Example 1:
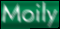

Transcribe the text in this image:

Moily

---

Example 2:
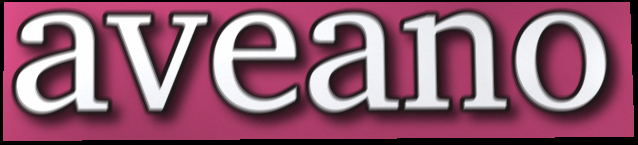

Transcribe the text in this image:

aveano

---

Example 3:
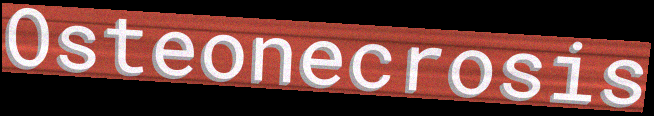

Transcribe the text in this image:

Osteonecrosis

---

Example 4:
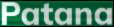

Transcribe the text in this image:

Patana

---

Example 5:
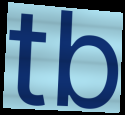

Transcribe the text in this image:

tb